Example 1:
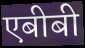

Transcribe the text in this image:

एबीबी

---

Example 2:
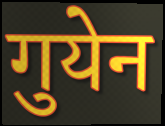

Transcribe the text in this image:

गुयेन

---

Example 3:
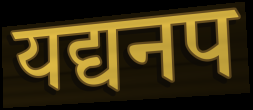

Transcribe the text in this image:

यद्यनप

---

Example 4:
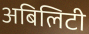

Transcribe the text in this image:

अबिलिटी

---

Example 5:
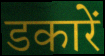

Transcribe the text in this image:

डकारें